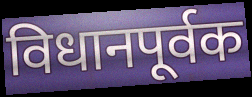
विधानपूर्वक